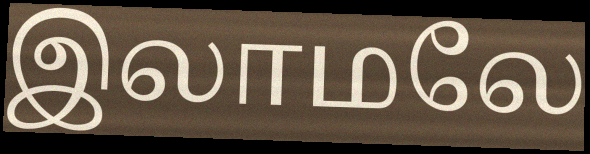
இலாமலே